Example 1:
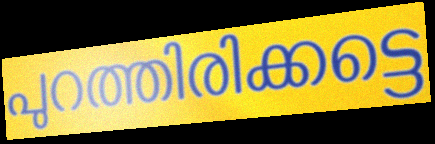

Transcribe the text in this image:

പുറത്തിരിക്കട്ടെ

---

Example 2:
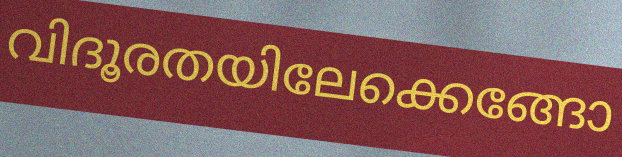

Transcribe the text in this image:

വിദൂരതയിലേക്കെങ്ങോ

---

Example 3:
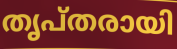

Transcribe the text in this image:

തൃപ്തരായി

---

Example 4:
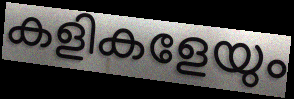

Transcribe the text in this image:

കളികളേയും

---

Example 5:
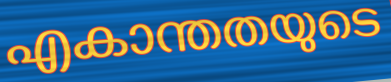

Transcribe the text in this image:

എകാന്തതയുടെ